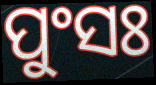
ପୁଂସଃ